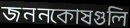
জননকোষগুলি